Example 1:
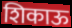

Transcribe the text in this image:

शिकाऊ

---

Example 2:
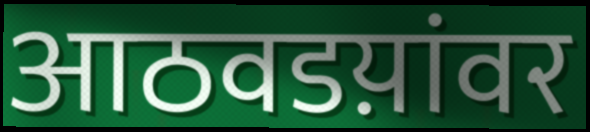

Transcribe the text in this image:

आठवडय़ांवर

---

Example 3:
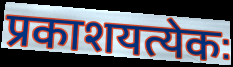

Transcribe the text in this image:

प्रकाशयत्येकः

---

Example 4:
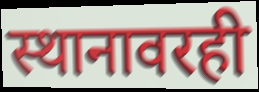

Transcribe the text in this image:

स्थानावरही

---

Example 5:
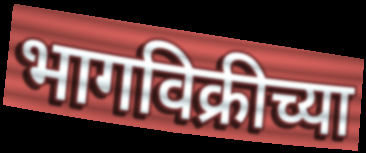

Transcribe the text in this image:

भागविक्रीच्या